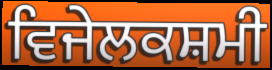
ਵਿਜੇਲਕਸ਼ਮੀ